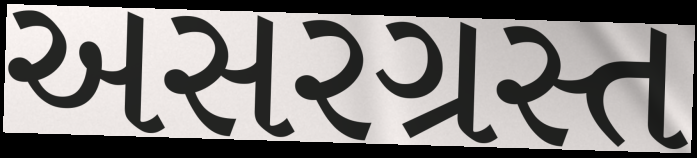
અસરગ્રસ્ત